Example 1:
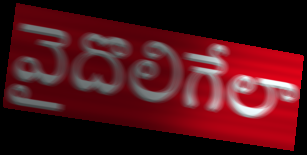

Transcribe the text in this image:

వైదొలిగేలా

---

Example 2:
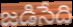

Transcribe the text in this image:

జడిసేది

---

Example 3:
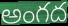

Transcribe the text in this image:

అంగద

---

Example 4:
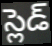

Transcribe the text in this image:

స్లెడ్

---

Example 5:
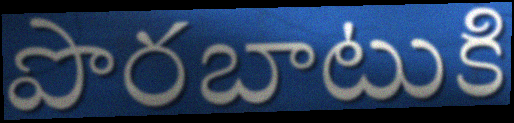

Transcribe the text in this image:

పొరబాటుకి